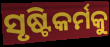
ସୃଷ୍ଟିକର୍ମକୁ